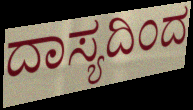
ದಾಸ್ಯದಿಂದ